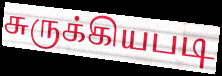
சுருக்கியபடி